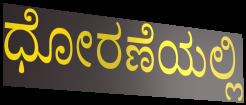
ಧೋರಣೆಯಲ್ಲಿ